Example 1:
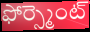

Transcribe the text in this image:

ఫోర్స్మెంట్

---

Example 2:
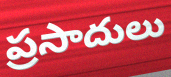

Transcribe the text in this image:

ప్రసాదులు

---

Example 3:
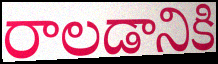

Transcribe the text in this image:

రాలడానికి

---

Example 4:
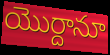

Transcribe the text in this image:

యొర్దానూ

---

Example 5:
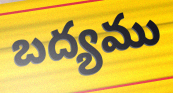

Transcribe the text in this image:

బద్యము